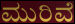
ಮುರಿವೆ